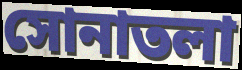
সোনাতলা